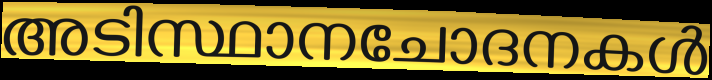
അടിസ്ഥാനചോദനകൾ